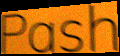
Pash